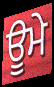
ਊਮੇ